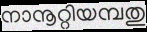
നാനൂറ്റിയമ്പതു